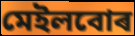
মেইলবোৰ